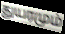
துயரமும்